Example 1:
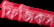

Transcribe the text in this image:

ফিজিকস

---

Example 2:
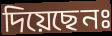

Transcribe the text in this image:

দিয়েছেনঃ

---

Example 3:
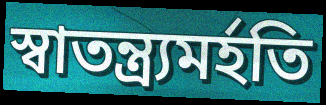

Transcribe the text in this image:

স্বাতন্ত্র্যমর্হতি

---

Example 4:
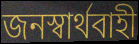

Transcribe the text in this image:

জনস্বার্থবাহী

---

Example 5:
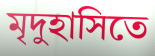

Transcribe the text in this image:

মৃদুহাসিতে